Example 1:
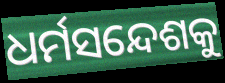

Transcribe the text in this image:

ଧର୍ମସନ୍ଦେଶକୁ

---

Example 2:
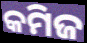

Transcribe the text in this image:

କମିଜ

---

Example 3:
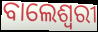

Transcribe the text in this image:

ବାଲେଶ୍ୱରୀ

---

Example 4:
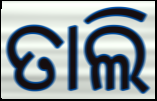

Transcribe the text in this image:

ତାଲି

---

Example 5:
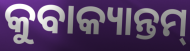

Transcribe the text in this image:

କୁବାକ୍ୟାନ୍ତମ୍